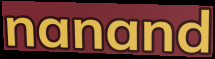
nanand